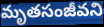
మృతసంజీవని